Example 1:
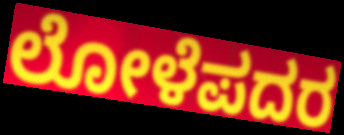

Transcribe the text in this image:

ಲೋಳೆಪದರ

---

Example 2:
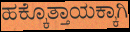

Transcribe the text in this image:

ಹಕ್ಕೊತ್ತಾಯಕ್ಕಾಗಿ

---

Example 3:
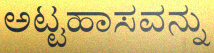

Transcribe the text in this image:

ಅಟ್ಟಹಾಸವನ್ನು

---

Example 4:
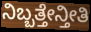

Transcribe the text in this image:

ನಿಬ್ಬತ್ತೇನ್ತೀತಿ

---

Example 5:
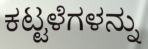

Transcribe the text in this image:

ಕಟ್ಟಳೆಗಳನ್ನು